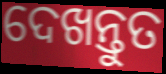
ଦେଖନ୍ତୁତ